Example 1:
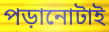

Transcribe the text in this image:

পড়ানোটাই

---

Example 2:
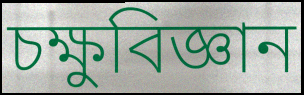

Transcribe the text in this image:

চক্ষুবিজ্ঞান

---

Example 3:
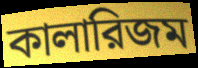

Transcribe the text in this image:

কালারিজম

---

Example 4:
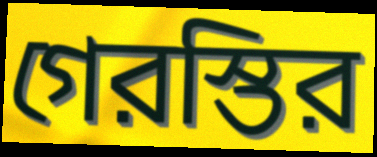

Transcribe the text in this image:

গেরস্তির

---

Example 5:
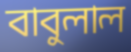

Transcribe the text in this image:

বাবুলাল